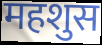
महशुस